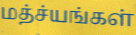
மத்ச்யங்கள்